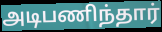
அடிபணிந்தார்